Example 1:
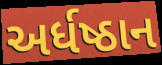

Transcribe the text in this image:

અર્ધષ્ઠાન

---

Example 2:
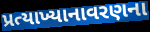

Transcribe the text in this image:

પ્રત્યાખ્યાનાવરણના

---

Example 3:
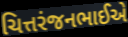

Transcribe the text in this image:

ચિત્તરંજનભાઈએ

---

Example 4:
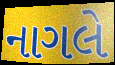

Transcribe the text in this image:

નાગલે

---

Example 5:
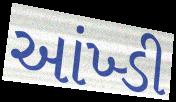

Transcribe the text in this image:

આંખ્ડી